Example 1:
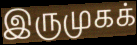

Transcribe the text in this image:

இருமுகக்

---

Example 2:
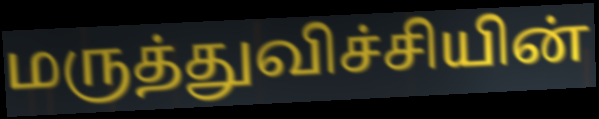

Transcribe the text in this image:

மருத்துவிச்சியின்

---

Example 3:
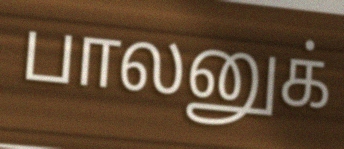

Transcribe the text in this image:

பாலனுக்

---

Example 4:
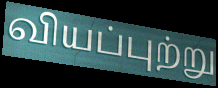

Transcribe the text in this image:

வியப்புற்று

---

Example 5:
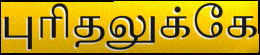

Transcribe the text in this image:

புரிதலுக்கே